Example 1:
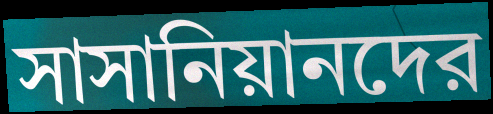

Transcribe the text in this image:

সাসানিয়ানদের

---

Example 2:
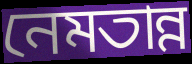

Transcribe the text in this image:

নেমতান্ন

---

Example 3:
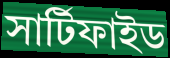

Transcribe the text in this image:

সার্টিফাইড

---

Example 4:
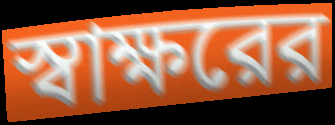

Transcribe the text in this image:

স্বাক্ষরের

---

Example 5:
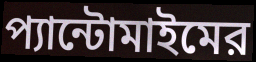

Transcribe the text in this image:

প্যান্টোমাইমের